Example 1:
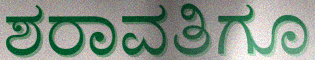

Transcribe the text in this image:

ಶರಾವತಿಗೂ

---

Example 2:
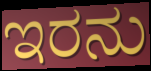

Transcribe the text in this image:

ಇರನು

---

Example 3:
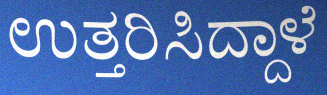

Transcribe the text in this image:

ಉತ್ತರಿಸಿದ್ದಾಳೆ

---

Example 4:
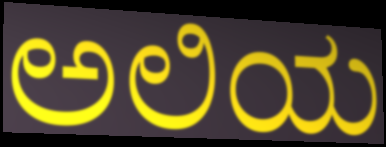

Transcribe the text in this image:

ಅಲಿಯ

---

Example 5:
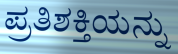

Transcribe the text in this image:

ಪ್ರತಿಶಕ್ತಿಯನ್ನು